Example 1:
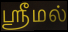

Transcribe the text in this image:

ஶ்ரீமல்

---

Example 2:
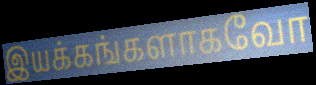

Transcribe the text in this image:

இயக்கங்களாகவோ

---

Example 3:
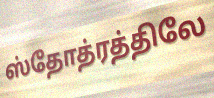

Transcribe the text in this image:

ஸ்தோத்ரத்திலே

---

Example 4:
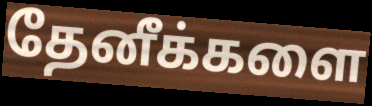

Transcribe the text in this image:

தேனீக்களை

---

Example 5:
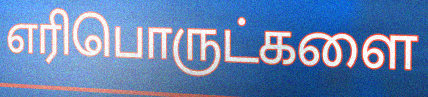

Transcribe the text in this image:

எரிபொருட்களை